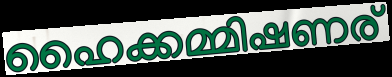
ഹൈക്കമ്മിഷണര്